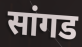
सांगड